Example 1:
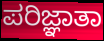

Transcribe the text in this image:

ಪರಿಜ್ಞಾತಾ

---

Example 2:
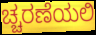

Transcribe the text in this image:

ಚ್ಚರಣೆಯಲಿ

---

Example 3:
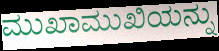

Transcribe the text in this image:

ಮುಖಾಮುಖಿಯನ್ನು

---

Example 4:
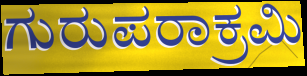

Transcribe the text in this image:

ಗುರುಪರಾಕ್ರಮಿ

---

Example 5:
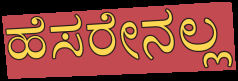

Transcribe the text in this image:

ಹೆಸರೇನಲ್ಲ